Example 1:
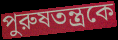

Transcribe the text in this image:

পুরুষতন্ত্রকে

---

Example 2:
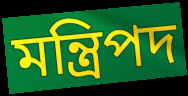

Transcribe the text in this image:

মন্ত্রিপদ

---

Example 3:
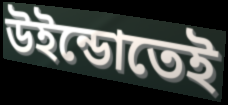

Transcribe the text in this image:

উইন্ডোতেই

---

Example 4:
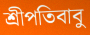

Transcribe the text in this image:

শ্রীপতিবাবু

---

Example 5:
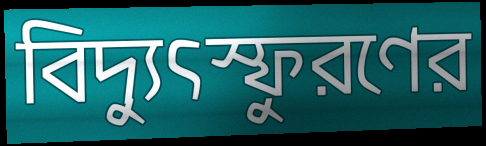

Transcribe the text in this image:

বিদ্যুৎস্ফুরণের